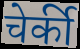
चेर्की